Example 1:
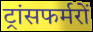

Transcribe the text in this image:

ट्रांसफर्मरों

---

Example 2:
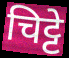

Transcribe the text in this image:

चिट्टे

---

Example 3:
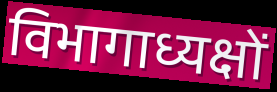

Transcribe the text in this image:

विभागाध्यक्षों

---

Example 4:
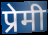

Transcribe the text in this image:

प्रेमी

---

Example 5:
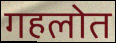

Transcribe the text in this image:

गहलोत